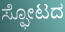
ಸ್ಫೋಟದ